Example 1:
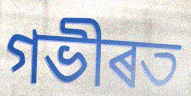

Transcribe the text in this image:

গভীৰত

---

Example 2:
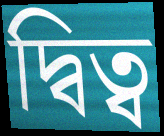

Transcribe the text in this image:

দ্বিত্ব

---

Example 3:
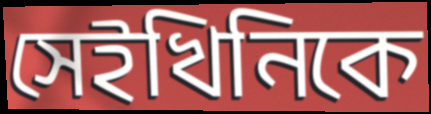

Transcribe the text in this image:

সেইখিনিকে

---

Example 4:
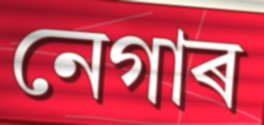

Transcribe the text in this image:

নেগাৰ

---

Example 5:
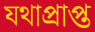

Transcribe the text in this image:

যথাপ্ৰাপ্ত